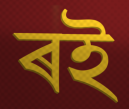
ৰই